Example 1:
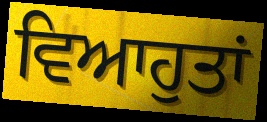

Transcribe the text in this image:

ਵਿਆਹੁਤਾਂ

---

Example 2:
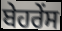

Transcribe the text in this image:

ਬੇਹਰੇਂਸ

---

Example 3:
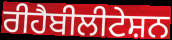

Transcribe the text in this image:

ਰੀਹੈਬੀਲੀਟੇਸ਼ਨ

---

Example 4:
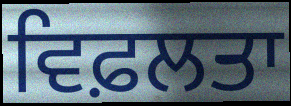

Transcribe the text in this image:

ਵਿਫ਼ਲਤਾ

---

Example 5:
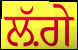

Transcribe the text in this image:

ਲ਼ੱਗੇ